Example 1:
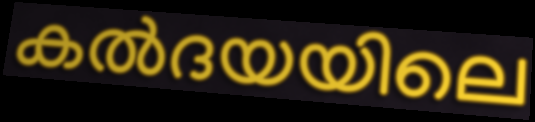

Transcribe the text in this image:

കൽദയയിലെ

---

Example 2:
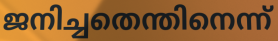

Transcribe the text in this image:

ജനിച്ചതെന്തിനെന്ന്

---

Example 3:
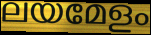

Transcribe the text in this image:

ലയമേളം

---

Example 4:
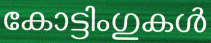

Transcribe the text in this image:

കോട്ടിംഗുകൾ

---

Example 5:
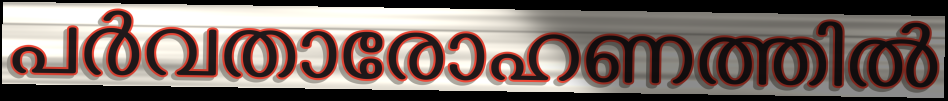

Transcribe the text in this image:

പർവതാരോഹണത്തിൽ